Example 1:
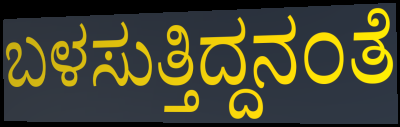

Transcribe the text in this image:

ಬಳಸುತ್ತಿದ್ದನಂತೆ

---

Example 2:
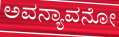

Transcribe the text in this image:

ಅವನ್ಯಾವನೋ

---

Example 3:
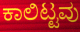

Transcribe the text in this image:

ಕಾಲಿಟ್ಟವು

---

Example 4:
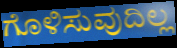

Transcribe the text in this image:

ಗೊಳಿಸುವುದಿಲ್ಲ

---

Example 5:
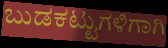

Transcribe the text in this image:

ಬುಡಕಟ್ಟುಗಳಿಗಾಗಿ